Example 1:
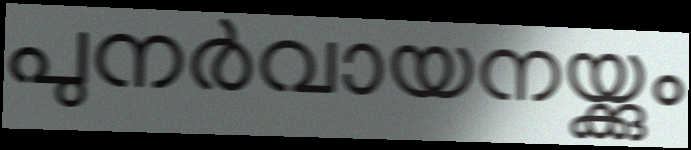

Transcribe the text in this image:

പുനർവായനയ്ക്കും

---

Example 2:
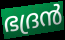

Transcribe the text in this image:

ഭദ്രൻ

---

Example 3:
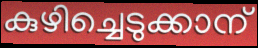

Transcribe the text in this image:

കുഴിച്ചെടുക്കാന്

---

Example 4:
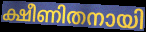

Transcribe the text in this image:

ക്ഷീണിതനായി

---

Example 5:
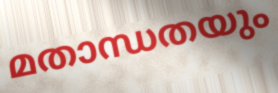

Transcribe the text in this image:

മതാന്ധതയും